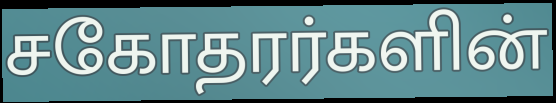
சகோதரர்களின்